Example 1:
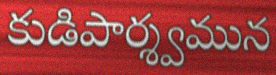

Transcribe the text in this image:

కుడిపార్శ్వమున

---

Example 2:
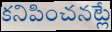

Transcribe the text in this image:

కనిపించనట్లే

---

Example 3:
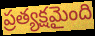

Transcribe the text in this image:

ప్రత్యక్షమైంది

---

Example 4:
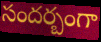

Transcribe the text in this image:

సందర్బంగా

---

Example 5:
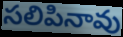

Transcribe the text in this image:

సలిపినావు